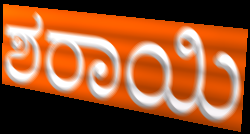
ಶರಾಯಿ